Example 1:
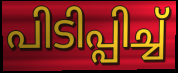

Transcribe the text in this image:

പിടിപ്പിച്ച്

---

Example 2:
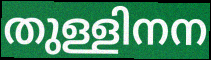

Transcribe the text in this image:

തുള്ളിനന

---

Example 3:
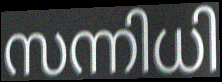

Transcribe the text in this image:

സന്നിധി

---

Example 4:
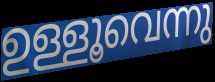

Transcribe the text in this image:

ഉള്ളൂവെന്നു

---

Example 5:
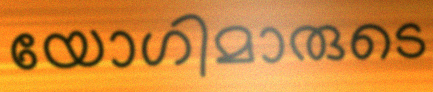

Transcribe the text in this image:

യോഗിമാരുടെ